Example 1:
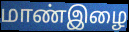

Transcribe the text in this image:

மாண்இழை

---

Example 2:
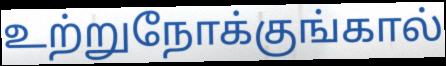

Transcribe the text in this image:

உற்றுநோக்குங்கால்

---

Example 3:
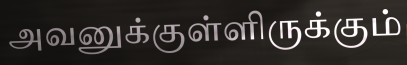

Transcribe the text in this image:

அவனுக்குள்ளிருக்கும்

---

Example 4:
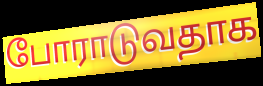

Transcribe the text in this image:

போராடுவதாக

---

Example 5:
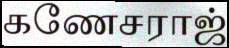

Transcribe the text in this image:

கணேசராஜ்